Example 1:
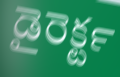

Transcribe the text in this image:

డైరెక్టర్‍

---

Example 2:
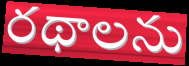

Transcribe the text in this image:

రథాలను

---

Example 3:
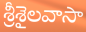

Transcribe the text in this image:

శ్రీశైలవాసా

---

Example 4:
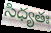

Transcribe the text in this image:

సిధ్యతః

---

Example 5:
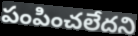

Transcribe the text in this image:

పంపించలేదని